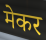
मेकर